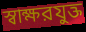
স্বাক্ষরযুক্ত